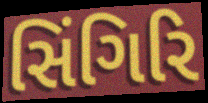
સિંગિરિ